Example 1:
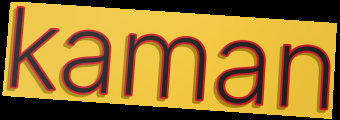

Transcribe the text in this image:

kaman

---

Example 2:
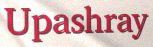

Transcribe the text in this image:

Upashray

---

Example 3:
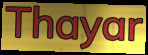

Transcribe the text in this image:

Thayar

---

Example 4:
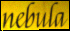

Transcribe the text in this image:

nebula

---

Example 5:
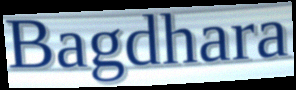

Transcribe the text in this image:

Bagdhara